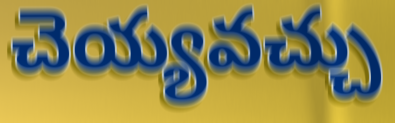
చెయ్యవచ్చు